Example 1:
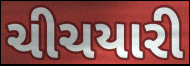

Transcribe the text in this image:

ચીચયારી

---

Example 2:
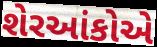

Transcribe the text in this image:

શેરઆંકોએ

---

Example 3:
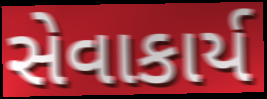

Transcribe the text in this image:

સેવાકાર્ય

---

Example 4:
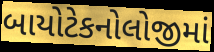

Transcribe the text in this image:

બાયોટેકનોલોજીમાં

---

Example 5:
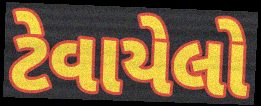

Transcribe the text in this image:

ટેવાયેલો